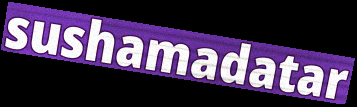
sushamadatar